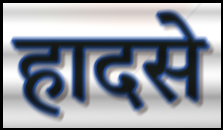
हादसे